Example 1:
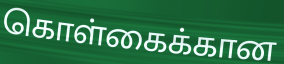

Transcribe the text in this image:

கொள்கைக்கான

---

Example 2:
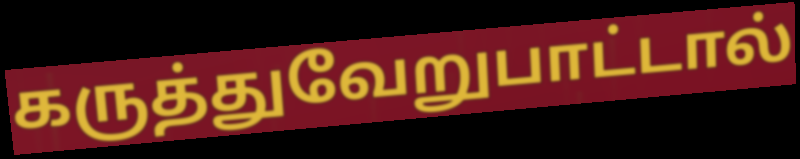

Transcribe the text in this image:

கருத்துவேறுபாட்டால்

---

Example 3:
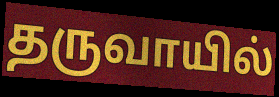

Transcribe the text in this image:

தருவாயில்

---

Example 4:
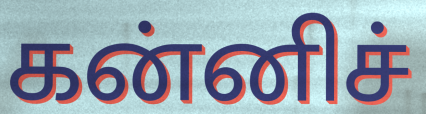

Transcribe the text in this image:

கன்னிச்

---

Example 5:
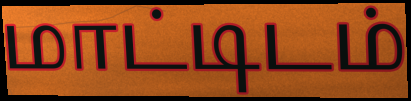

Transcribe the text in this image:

மாட்டிடம்